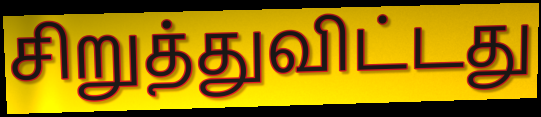
சிறுத்துவிட்டது